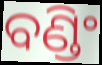
ବଣ୍ଡିଂ